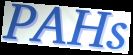
PAHs